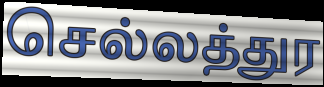
செல்லத்துர